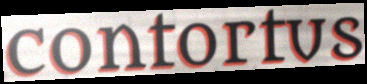
contortus